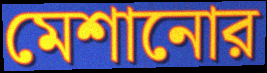
মেশানোর